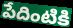
పేదింటికి